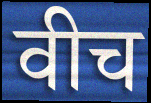
वीच